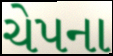
ચેપના